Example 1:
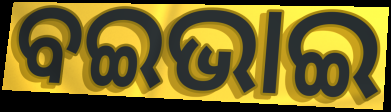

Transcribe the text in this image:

ବଇଭାଇ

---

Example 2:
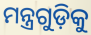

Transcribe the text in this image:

ମନ୍ତ୍ରଗୁଡ଼ିକୁ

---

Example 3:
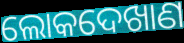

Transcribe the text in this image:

ଲୋକଦେଖାଣ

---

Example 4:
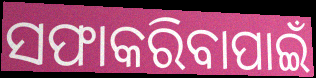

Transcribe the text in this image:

ସଫାକରିବାପାଇଁ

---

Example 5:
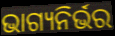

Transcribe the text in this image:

ଭାଗ୍ୟନିର୍ଭର